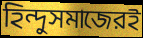
হিন্দুসমাজেরই